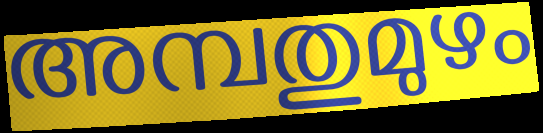
അമ്പതുമുഴം